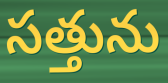
సత్తును